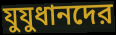
যুযুধানদের